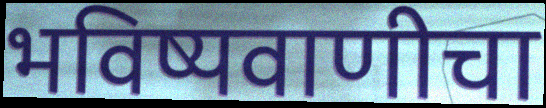
भविष्यवाणीचा